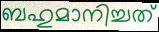
ബഹുമാനിച്ചത്